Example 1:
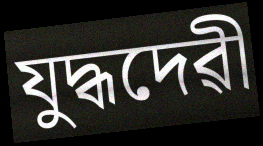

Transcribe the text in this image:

যুদ্ধদেৱী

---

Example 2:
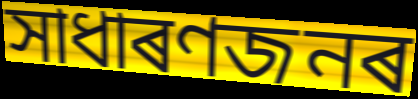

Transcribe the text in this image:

সাধাৰণজনৰ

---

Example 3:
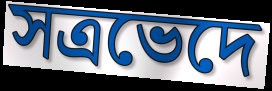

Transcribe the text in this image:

সত্ৰভেদে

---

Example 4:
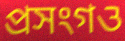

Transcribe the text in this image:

প্ৰসংগও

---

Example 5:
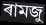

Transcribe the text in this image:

ৰামজু